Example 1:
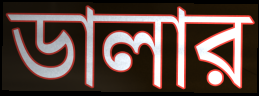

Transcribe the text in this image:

ডালার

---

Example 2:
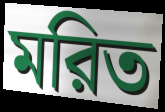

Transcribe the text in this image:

মরিত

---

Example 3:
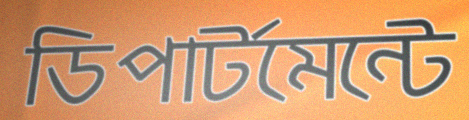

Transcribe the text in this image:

ডিপার্টমেন্টে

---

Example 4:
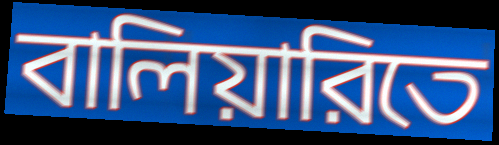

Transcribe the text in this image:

বালিয়ারিতে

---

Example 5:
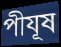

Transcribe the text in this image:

পীযূষ